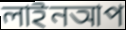
লাইনআপ